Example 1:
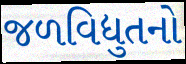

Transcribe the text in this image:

જળવિદ્યુતનો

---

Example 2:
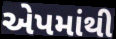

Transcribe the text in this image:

એપમાંથી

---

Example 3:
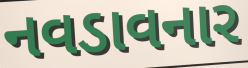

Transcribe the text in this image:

નવડાવનાર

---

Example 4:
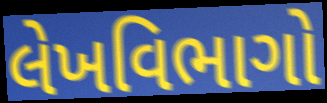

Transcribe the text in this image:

લેખવિભાગો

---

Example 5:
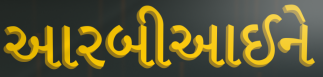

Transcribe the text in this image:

આરબીઆઈને